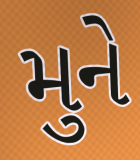
મુને